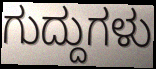
ಗುದ್ದುಗಳು